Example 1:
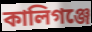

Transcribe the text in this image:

কালিগঞ্জে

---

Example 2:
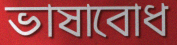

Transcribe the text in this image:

ভাষাবোধ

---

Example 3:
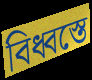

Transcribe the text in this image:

বিধ্বস্তে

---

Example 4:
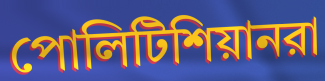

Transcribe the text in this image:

পোলিটিশিয়ানরা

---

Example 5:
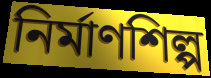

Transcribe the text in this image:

নির্মাণশিল্প